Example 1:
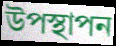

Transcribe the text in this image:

উপস্থাপন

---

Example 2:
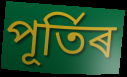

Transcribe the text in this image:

পূৰ্তিৰ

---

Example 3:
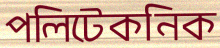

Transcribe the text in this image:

পলিটেকনিক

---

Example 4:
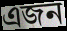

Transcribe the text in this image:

এজন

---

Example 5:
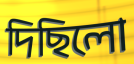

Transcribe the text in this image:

দিছিলো